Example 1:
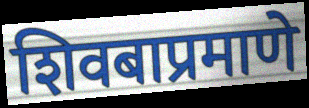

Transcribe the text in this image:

शिवबाप्रमाणे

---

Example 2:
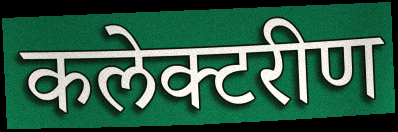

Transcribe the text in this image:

कलेक्टरीण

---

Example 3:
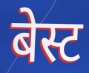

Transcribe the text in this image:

बेस्ट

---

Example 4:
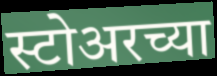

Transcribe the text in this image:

स्टोअरच्या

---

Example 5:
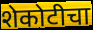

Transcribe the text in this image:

शेकोटीचा